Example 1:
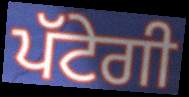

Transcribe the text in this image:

ਪੱਟੇਗੀ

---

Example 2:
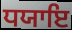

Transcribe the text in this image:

ਧਯਾਇ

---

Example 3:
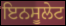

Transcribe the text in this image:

ਇਨਸੂਲੇਟ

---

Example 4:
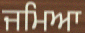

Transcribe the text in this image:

ਜਮਿਆ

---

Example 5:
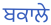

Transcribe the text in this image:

ਬਕਾਲੇ